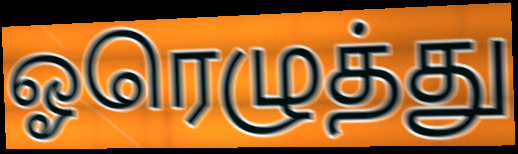
ஓரெழுத்து